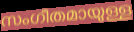
സംഗീതമായുള്ള